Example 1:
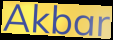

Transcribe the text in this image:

Akbar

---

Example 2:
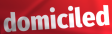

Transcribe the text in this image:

domiciled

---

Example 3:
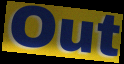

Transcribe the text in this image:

Out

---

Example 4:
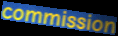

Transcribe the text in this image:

commission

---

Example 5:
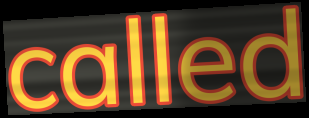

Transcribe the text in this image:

called